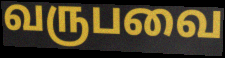
வருபவை